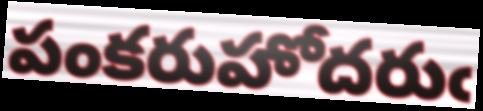
పంకరుహోదరుఁ